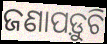
ଜଣାପଡ଼ୁଚି